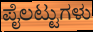
ಪೈಲಟ್ಟುಗಳು